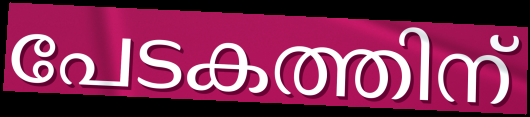
പേടകത്തിന്